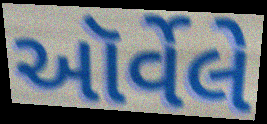
ઑર્વેલે